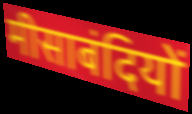
मीसाबंदियों